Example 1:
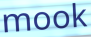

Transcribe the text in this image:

mook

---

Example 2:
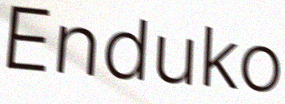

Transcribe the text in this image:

Enduko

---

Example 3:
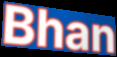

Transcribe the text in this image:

Bhan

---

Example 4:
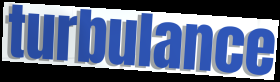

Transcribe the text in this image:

turbulance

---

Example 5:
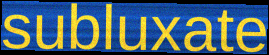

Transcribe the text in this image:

subluxate